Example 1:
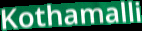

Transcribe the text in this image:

Kothamalli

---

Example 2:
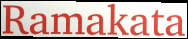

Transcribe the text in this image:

Ramakata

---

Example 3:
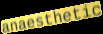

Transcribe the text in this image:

anaesthetic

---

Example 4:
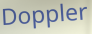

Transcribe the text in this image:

Doppler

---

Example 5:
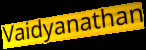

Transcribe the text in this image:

Vaidyanathan